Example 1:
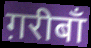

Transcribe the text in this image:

ग़रीबाँ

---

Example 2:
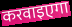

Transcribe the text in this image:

करवाइएगा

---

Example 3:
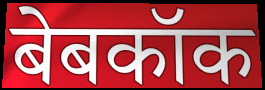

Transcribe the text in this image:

बेबकॉक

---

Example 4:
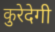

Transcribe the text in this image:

कुरेदेगी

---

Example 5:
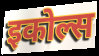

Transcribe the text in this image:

इकोल्स